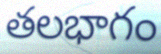
తలభాగం